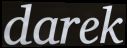
darek